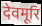
देवमूरि